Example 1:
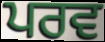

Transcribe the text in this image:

ਪਰਵ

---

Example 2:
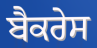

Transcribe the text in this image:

ਬੈਕਰੇਸ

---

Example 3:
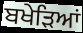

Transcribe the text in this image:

ਬਖੇੜਿਆਂ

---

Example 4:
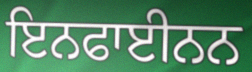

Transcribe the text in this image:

ਇਨਫਾਈਨਨ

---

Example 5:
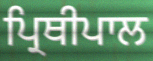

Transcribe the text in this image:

ਪ੍ਰਿਥੀਪਾਲ